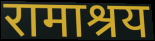
रामाश्रय